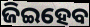
ଜିଇହେବ